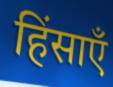
हिंसाएँ